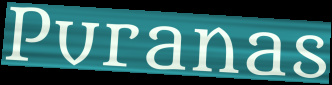
Puranas